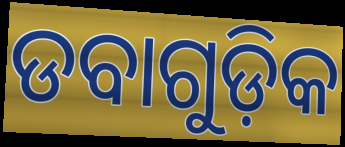
ଡବାଗୁଡ଼ିକ